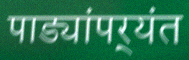
पाड्यांपर्यंत